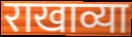
राखाव्या